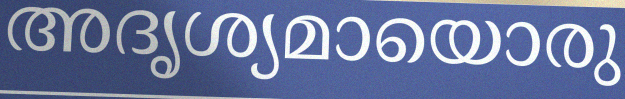
അദൃശ്യമായൊരു